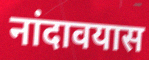
नांदावयास